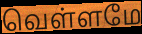
வெள்ளமே